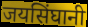
जयसिंघानी